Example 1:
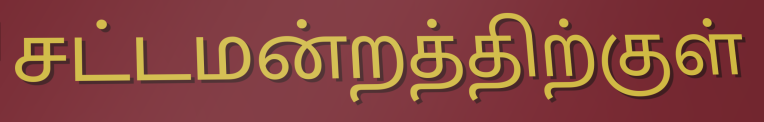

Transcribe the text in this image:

சட்டமன்றத்திற்குள்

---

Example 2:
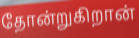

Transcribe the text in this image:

தோன்றுகிறான்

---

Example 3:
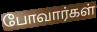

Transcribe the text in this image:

போவார்கள்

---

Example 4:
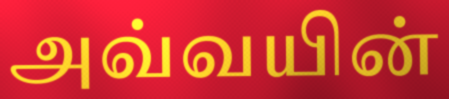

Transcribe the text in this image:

அவ்வயின்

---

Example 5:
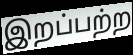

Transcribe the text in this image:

இறப்பற்ற